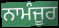
ਨਾਮੰਜੂਰ